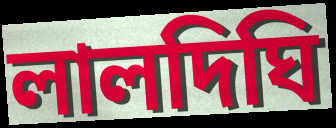
লালদিঘি